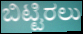
ಬಿಟ್ಟಿರಲು